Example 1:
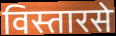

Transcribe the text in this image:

विस्तारसे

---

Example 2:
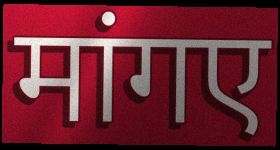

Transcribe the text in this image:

मांगए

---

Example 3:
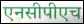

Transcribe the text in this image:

एनसीपीएच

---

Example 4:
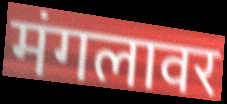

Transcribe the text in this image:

मंगलावर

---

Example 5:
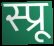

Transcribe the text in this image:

स्प्रू